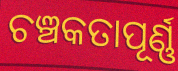
ଚଞ୍ଚକତାପୂର୍ଣ୍ଣ